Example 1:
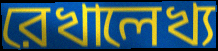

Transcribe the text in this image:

রেখালেখ্য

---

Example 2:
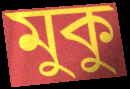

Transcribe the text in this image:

মুকু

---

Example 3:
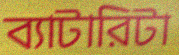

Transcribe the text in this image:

ব্যাটারিটা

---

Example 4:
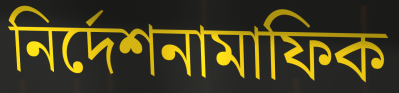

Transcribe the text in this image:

নির্দেশনামাফিক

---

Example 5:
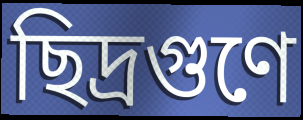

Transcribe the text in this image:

ছিদ্রগুণে